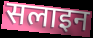
सलाइन